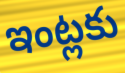
ఇంట్లకు